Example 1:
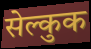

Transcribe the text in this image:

सेल्कुक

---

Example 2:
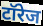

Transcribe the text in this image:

टॉरेज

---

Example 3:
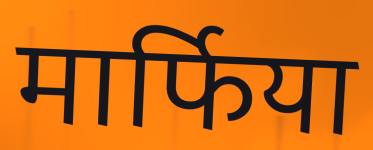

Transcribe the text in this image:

मार्फिया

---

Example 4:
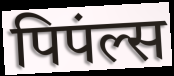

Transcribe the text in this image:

पिपंल्स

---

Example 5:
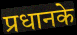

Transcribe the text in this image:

प्रधानके